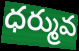
ధర్మువ